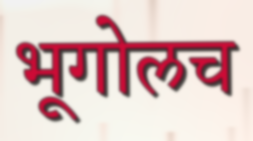
भूगोलच